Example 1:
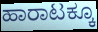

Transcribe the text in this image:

ಹಾರಾಟಕ್ಕೂ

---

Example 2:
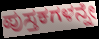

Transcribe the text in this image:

ಪುಸ್ತಕಗಳನ್ನೇ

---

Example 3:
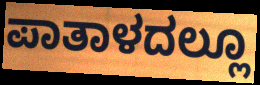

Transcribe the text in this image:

ಪಾತಾಳದಲ್ಲೂ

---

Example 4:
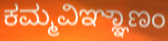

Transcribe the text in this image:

ಕಮ್ಮವಿಞ್ಞಾಣಂ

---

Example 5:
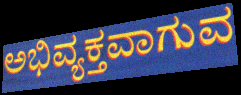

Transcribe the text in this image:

ಅಭಿವ್ಯಕ್ತವಾಗುವ